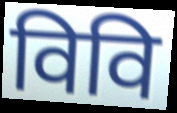
विवि